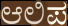
ಆಲಿಪ